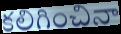
కలిగించినా